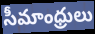
సీమాంధ్రులు